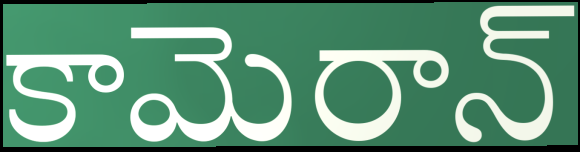
కామెరాన్